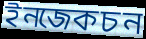
ইনজেকচন